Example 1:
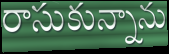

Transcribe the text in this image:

రాసుకున్నాను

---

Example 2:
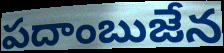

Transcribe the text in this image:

పదాంబుజేన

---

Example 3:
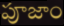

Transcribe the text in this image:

పూజాం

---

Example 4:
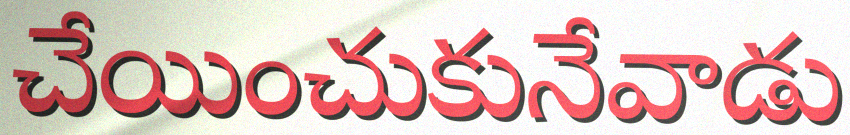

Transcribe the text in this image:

చేయించుకునేవాడు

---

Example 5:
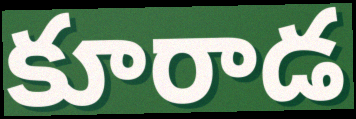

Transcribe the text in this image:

కూరాడ